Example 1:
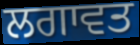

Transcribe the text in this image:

ਲਗਾਵਤ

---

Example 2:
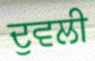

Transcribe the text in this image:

ਦੁਵਲੀ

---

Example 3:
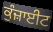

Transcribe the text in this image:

ਕੁੰਜ਼ਾਈਟ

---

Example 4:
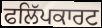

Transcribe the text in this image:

ਫਲਿੱਪਕਾਰਟ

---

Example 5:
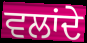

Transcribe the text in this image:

ਵਲਾਂਦੇ